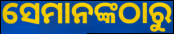
ସେମାନଙ୍କଠାରୁ